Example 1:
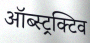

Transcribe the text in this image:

ऑब्स्ट्रक्टिव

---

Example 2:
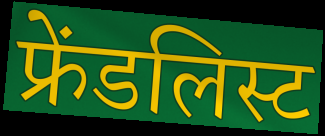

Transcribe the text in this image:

फ्रेंडलिस्ट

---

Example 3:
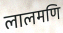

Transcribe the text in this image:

लालमणि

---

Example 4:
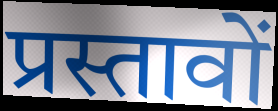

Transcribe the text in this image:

प्रस्‍तावों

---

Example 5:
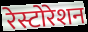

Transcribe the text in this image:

रेस्टोरेशन